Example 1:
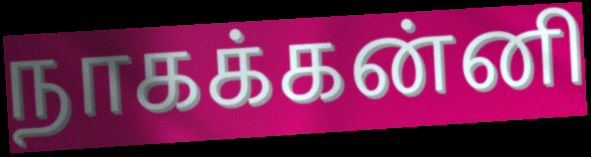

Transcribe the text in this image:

நாகக்கன்னி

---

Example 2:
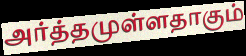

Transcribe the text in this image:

அர்த்தமுள்ளதாகும்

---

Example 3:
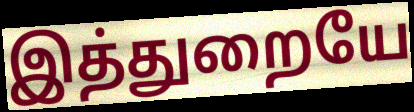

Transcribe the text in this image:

இத்துறையே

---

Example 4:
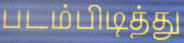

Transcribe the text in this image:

படம்பிடித்து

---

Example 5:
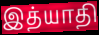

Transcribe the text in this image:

இத்யாதி